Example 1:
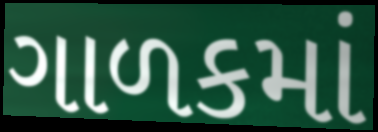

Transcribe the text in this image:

ગાળકમાં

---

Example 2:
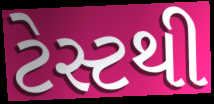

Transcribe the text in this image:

ટેસ્ટથી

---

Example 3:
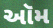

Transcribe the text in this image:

ઑમ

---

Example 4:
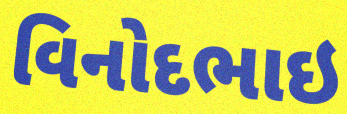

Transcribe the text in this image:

વિનોદભાઇ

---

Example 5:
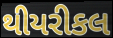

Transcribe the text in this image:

થીયરીકલ